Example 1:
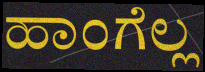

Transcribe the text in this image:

ಹಾಂಗೆಲ್ಲ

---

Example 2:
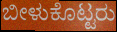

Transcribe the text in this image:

ಬೀಳುಕೊಟ್ಟರು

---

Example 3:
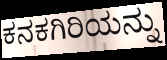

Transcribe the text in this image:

ಕನಕಗಿರಿಯನ್ನು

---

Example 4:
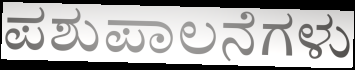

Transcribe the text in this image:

ಪಶುಪಾಲನೆಗಳು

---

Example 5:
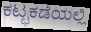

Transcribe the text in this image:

ಕಟ್ಟಕಡೆಯಲ್ಲಿ